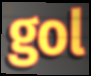
gol